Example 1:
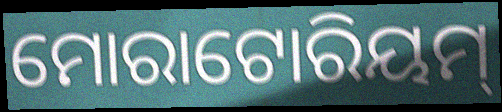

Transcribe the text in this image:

ମୋରାଟୋରିୟମ୍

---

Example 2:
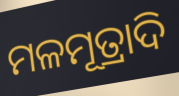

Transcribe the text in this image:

ମଳମୂତ୍ରାଦି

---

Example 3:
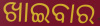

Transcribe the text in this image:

ଖାଇବାର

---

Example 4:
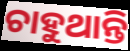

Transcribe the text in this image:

ଚାହୁଥାନ୍ତି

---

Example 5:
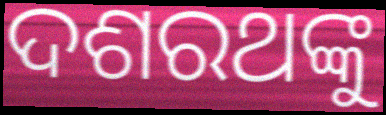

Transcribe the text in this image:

ଦଶରଥଙ୍କୁ